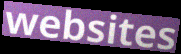
websites